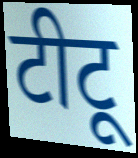
टीटू